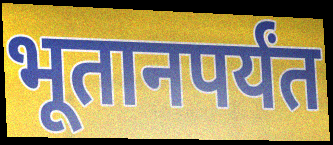
भूतानपर्यंत